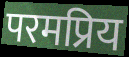
परमप्रिय